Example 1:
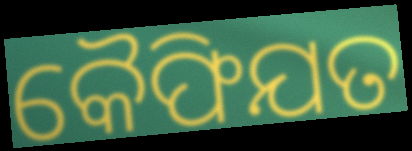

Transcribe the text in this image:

କୈଫିଯତ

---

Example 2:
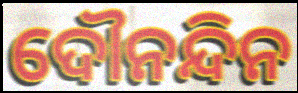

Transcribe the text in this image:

ଦୌନନ୍ଦିନ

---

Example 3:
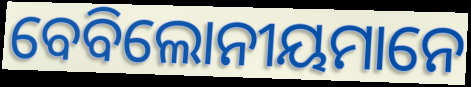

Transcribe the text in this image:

ବେବିଲୋନୀୟମାନେ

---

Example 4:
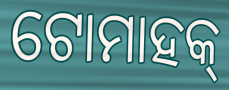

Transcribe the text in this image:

ଟୋମାହକ୍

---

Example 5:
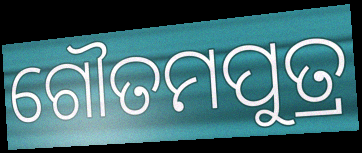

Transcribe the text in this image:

ଗୌତମପୁତ୍ର